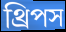
থ্রিপস